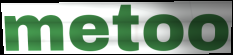
metoo